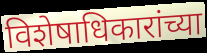
विशेषाधिकारांच्या